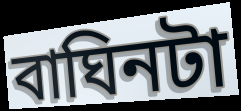
বাঘিনটা